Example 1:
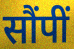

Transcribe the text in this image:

सौंपीं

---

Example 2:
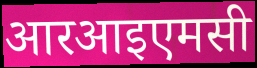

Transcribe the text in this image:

आरआइएमसी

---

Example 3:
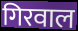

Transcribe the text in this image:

गिरवाल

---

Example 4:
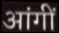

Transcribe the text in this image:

आंगीं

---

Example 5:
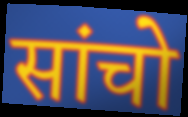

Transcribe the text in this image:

सांचो